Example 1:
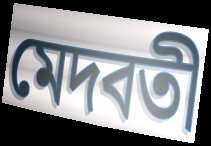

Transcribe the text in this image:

মেদবতী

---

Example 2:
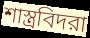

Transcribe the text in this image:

শাস্ত্রবিদরা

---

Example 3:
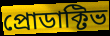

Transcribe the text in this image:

প্রোডাক্টিভ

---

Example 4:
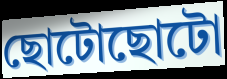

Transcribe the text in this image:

ছোটোছোটো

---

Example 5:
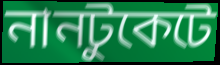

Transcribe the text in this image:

নানটুকেটে